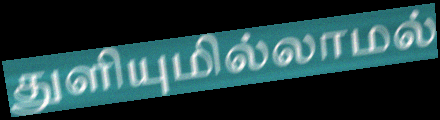
துளியுமில்லாமல்